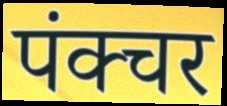
पंक्चर